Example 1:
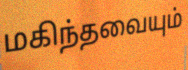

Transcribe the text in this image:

மகிந்தவையும்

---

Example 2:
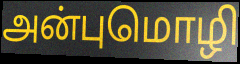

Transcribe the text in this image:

அன்புமொழி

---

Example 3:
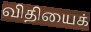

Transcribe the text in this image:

விதியைக்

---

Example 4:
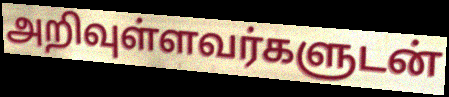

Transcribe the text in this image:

அறிவுள்ளவர்களுடன்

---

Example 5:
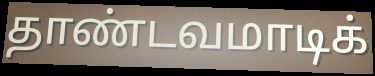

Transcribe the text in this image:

தாண்டவமாடிக்